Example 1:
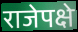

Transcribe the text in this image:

राजेपक्षे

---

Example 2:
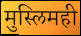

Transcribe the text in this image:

मुस्लिमही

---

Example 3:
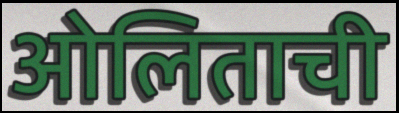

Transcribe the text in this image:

ओलिताची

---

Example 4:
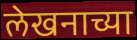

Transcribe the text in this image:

लेखनाच्या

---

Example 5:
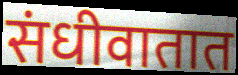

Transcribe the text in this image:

संधीवातात